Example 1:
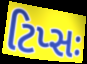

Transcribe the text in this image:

ટિપ્સઃ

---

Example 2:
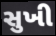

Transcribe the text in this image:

સુખી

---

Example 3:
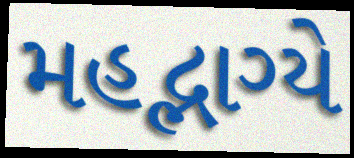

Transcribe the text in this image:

મહદ્ભાગ્યે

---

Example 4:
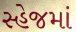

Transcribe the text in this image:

સ્હેજમાં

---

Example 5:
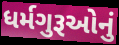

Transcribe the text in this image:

ધર્મગુરૂઓનું